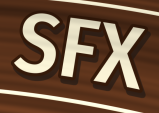
SFX